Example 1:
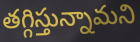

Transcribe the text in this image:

తగ్గిస్తున్నామని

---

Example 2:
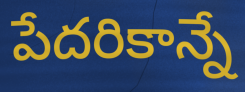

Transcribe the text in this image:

పేదరికాన్నే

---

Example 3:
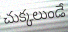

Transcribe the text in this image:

చుక్కలుండే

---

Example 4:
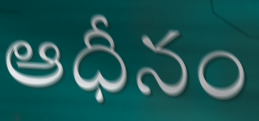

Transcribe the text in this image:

ఆధీనం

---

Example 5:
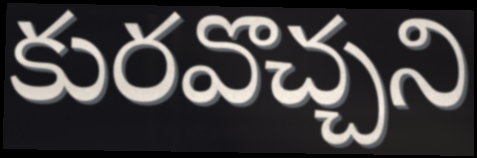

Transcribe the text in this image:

కురవొచ్చని